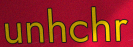
unhchr